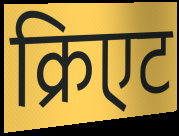
क्रिएट